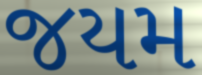
જયમ